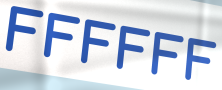
FFFFFF